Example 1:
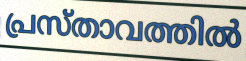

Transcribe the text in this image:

പ്രസ്താവത്തിൽ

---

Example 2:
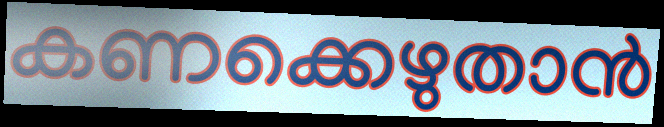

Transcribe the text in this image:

കണക്കെഴുതാൻ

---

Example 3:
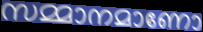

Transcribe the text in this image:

സമ്മാനമാണോ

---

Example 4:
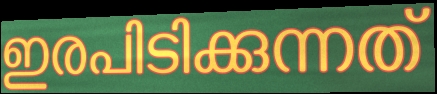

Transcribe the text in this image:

ഇരപിടിക്കുന്നത്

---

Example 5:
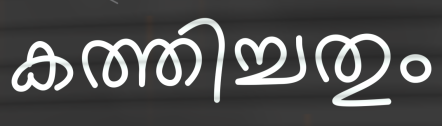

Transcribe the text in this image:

കത്തിച്ചതും